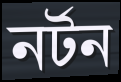
নৰ্টন